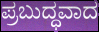
ಪ್ರಬುದ್ಧವಾದ